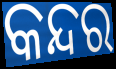
କନ୍ଦର